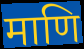
माणि